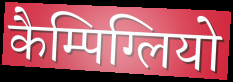
कैम्पिग्लियो